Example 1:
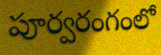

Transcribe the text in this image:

పూర్వరంగంలో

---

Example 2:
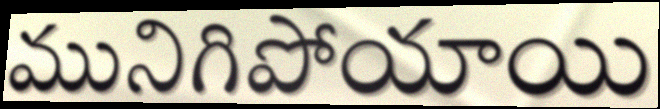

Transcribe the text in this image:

మునిగిపోయాయి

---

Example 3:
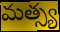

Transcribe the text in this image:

మత్స్య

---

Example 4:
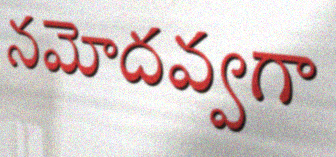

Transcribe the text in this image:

నమోదవ్వగా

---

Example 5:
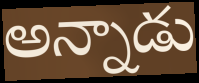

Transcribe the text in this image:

అన్నాడు